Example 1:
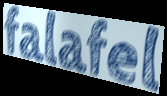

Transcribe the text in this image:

falafel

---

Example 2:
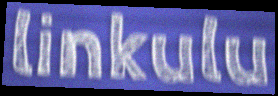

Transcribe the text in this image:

linkulu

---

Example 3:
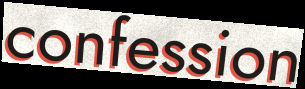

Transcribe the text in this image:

confession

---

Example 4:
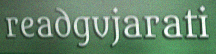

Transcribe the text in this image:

readgujarati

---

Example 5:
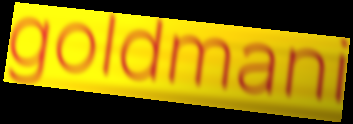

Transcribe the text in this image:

goldmani